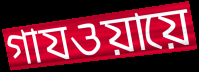
গাযওয়ায়ে